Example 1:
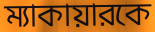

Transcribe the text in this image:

ম্যাকায়ারকে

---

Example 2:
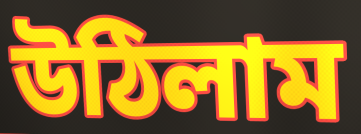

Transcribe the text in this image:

উঠিলাম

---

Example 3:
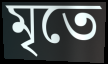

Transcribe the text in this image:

মৃতে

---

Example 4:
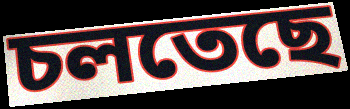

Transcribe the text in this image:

চলতেছে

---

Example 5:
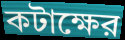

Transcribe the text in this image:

কটাক্ষের